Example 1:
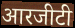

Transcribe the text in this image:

आरजीटी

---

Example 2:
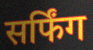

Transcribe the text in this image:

सर्फिंग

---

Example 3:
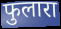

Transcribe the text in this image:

फुलारा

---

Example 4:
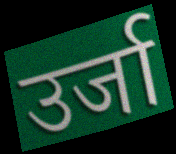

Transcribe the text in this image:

उर्जा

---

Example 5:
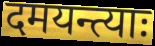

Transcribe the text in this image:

दमयन्त्याः